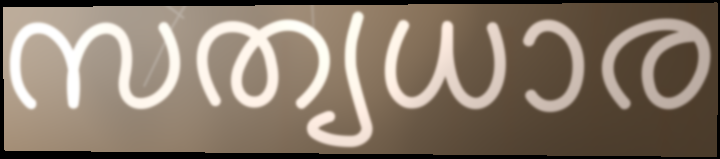
സത്യധാര